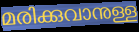
മരിക്കുവാനുള്ള